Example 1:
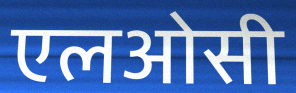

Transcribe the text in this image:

एलओसी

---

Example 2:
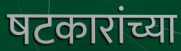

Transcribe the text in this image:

षटकारांच्या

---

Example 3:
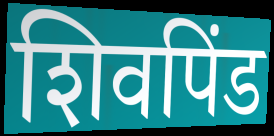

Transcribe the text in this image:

शिवपिंड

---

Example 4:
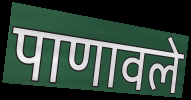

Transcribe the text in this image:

पाणावले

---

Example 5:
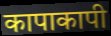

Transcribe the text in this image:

कापाकापी